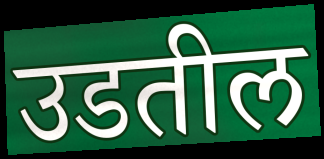
उडतील